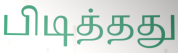
பிடித்தது